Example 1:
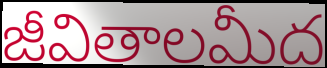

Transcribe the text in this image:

జీవితాలమీద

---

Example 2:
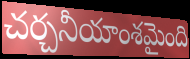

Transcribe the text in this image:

చర్చనీయాంశమైంది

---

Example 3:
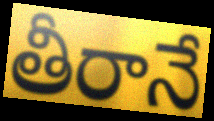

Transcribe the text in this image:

తీరానే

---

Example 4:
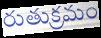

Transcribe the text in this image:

రుతుక్రమం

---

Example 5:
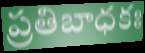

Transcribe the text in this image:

ప్రతిబాధకః